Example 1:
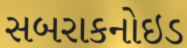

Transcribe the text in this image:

સબરાકનોઇડ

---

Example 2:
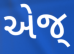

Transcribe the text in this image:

એજ્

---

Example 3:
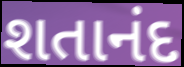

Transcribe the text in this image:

શતાનંદ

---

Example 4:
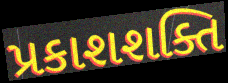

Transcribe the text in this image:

પ્રકાશશક્તિ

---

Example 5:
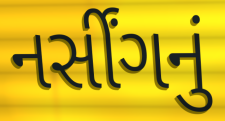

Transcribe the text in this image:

નર્સીંગનું